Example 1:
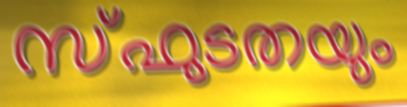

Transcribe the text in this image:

സ്ഫുടതയും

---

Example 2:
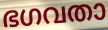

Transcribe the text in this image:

ഭഗവതാ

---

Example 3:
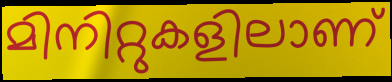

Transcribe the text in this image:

മിനിറ്റുകളിലാണ്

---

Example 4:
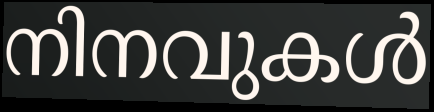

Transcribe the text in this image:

നിനവുകൾ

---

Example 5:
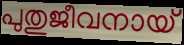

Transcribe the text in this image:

പുതുജീവനായ്